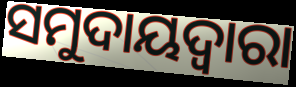
ସମୁଦାୟଦ୍ୱାରା